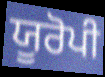
ਯੂਰੋਪੀ